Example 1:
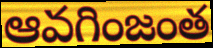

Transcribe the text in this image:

ఆవగింజంత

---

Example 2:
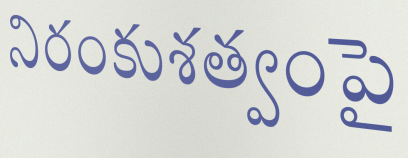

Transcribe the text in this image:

నిరంకుశత్వంపై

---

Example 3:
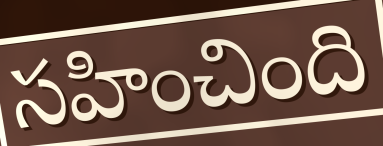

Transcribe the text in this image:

సహించింది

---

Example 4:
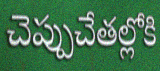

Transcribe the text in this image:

చెప్పుచేతల్లోకి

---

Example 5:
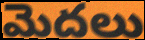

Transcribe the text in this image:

మెదలు